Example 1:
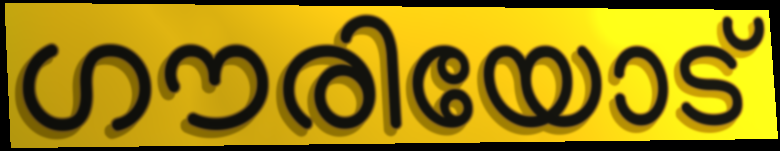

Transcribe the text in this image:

ഗൗരിയോട്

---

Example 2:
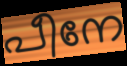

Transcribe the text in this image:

പീനേ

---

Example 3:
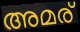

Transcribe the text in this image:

അമര്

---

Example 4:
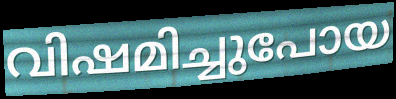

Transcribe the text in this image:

വിഷമിച്ചുപോയ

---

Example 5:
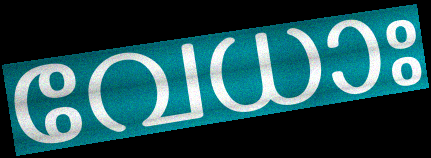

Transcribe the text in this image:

വേധാഃ